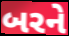
બરને